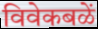
विवेकबळें